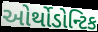
ઓર્થોડોન્ટિક